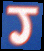
ग्‍